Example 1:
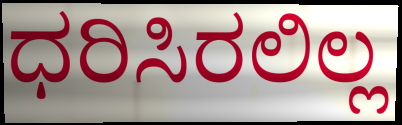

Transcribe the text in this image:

ಧರಿಸಿರಲಿಲ್ಲ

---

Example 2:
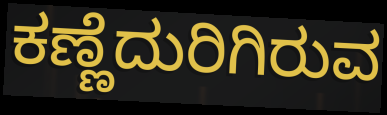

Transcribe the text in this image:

ಕಣ್ಣೆದುರಿಗಿರುವ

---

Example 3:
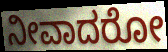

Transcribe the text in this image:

ನೀವಾದರೋ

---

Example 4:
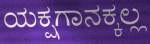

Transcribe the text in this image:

ಯಕ್ಷಗಾನಕ್ಕಲ್ಲ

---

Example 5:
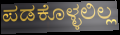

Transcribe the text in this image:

ಪಡಕೊಳ್ಳಲಿಲ್ಲ